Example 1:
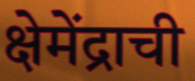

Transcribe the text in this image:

क्षेमेंद्राची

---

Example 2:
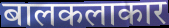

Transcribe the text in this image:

बालकलाकार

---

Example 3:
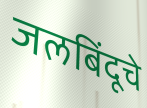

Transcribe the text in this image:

जलबिंदूचे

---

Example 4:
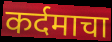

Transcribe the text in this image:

कर्दमाचा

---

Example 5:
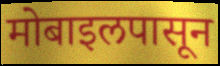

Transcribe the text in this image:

मोबाइलपासून